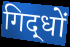
गिद्धों